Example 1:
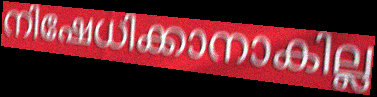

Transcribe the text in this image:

നിഷേധിക്കാനാകില്ല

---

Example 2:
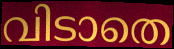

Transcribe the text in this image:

വിടാതെ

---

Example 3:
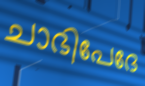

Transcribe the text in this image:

ചാഭിപേദേ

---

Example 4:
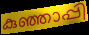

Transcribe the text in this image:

കുഞ്ഞാപ്പി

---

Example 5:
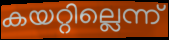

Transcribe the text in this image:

കയറ്റില്ലെന്ന്